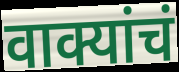
वाक्यांचं